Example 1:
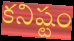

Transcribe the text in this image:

కనిష్టం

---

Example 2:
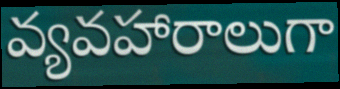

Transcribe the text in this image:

వ్యవహారాలుగా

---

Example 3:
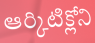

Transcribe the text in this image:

ఆర్కిటిక్లోని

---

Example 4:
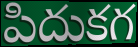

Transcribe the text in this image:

పిదుకగ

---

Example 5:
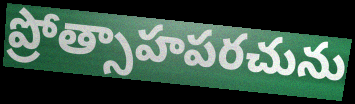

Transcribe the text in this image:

ప్రోత్సాహపరచును